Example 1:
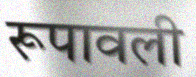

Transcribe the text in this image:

रूपावली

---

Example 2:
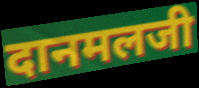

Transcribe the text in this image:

दानमलजी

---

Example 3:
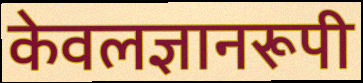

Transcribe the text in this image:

केवलज्ञानरूपी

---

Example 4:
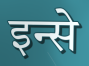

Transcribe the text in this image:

इन्से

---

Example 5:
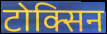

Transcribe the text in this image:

टोक्सिन